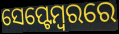
ସେପ୍ଟେମ୍ୱରରେ